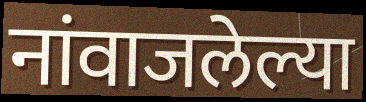
नांवाजलेल्या